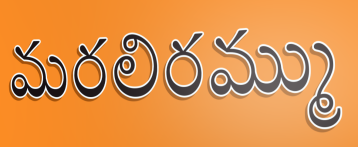
మరలిరమ్ము